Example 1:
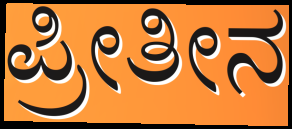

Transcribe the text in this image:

ಪ್ರೀತೀನ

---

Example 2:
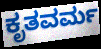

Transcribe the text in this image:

ಕೃತವರ್ಮ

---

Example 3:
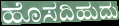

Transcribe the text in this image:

ಹೊಸದಿಹುದು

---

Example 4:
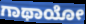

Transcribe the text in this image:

ಗಾಥಾಯೋ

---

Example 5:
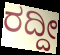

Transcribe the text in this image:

ರದ್ದೀ